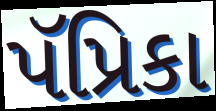
પૅપ્રિકા